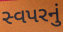
સ્વપરનું